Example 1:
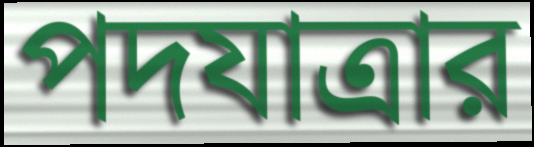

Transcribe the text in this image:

পদযাত্রার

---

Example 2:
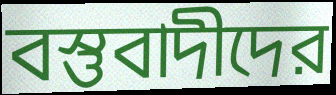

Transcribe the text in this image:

বস্তুবাদীদের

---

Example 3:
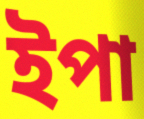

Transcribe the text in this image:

ইপা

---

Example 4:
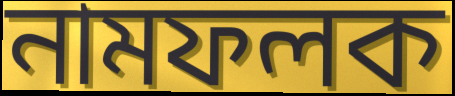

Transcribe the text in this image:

নামফলক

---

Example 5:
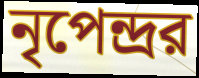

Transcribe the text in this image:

নৃপেন্দ্রর